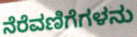
ನೆರೆವಣಿಗೆಗಳನು